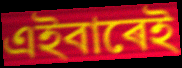
এইবাৰেই